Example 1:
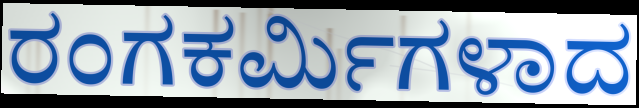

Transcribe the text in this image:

ರಂಗಕರ್ಮಿಗಳಾದ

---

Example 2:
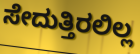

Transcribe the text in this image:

ಸೇದುತ್ತಿರಲಿಲ್ಲ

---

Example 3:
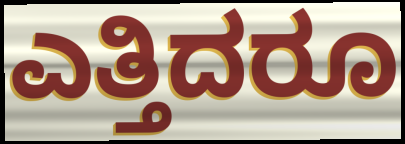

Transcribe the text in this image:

ಎತ್ತಿದರೂ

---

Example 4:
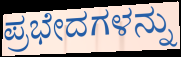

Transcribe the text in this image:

ಪ್ರಭೇದಗಳನ್ನು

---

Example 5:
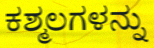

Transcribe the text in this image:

ಕಶ್ಮಲಗಳನ್ನು